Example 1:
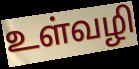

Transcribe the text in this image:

உள்வழி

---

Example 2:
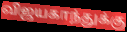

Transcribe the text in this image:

விஜயகாந்துக்கு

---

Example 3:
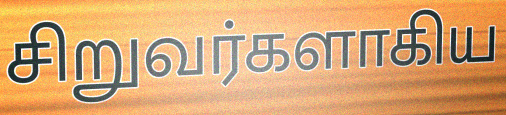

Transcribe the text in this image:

சிறுவர்களாகிய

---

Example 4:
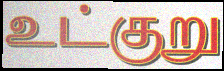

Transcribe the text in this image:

உட்குறு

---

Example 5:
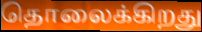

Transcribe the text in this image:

தொலைக்கிறது